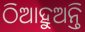
ଠିଆହୁଅନ୍ତି